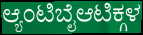
ಆ್ಯಂಟಿಬೈಆಟಿಕ್ಗಳ